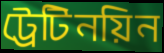
ট্রেটিনয়িন